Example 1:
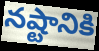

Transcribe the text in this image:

నష్టానికి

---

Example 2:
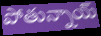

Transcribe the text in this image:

పోతున్నాయ్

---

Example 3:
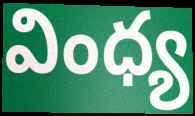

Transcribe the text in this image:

వింధ్య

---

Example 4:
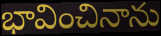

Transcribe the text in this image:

భావించినాను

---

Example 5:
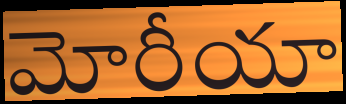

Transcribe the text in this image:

మోరీయా